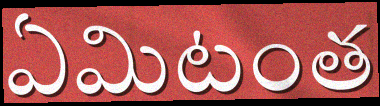
ఏమిటంత